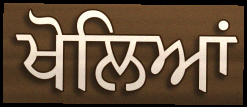
ਖੋਲਿਆਂ